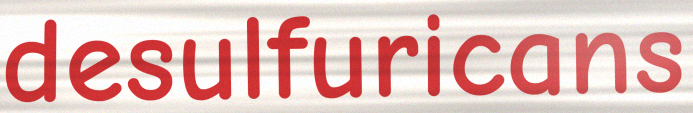
desulfuricans